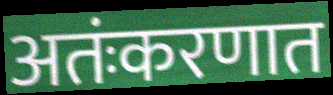
अतंःकरणात